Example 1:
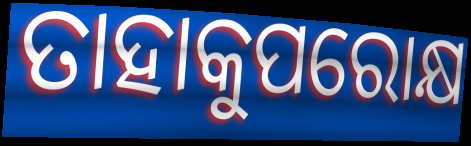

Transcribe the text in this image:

ତାହାକୁପରୋକ୍ଷ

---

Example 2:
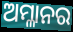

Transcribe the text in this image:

ଅମ୍ଳାନର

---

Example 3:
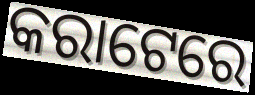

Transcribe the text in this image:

କରାଟେରେ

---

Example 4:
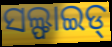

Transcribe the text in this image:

ସଲ୍ଫାଇଡ୍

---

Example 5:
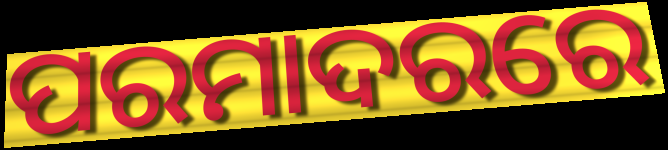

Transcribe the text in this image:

ପରମାଦରରେ